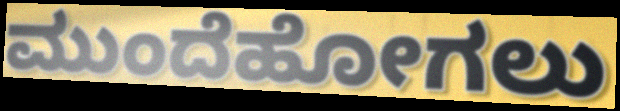
ಮುಂದೆಹೋಗಲು